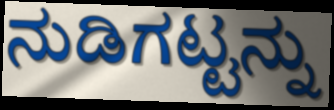
ನುಡಿಗಟ್ಟನ್ನು